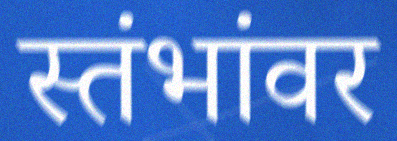
स्तंभांवर